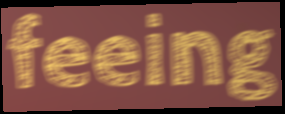
feeing